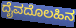
ದೈವದೊಲಹಿನ